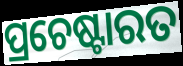
ପ୍ରଚେଷ୍ଟାରତ